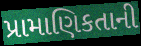
પ્રામાણિકતાની